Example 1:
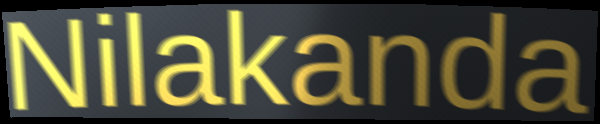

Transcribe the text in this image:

Nilakanda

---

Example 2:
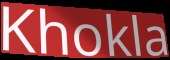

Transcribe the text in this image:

Khokla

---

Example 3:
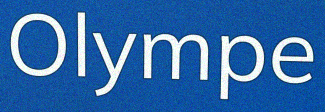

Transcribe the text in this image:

Olympe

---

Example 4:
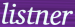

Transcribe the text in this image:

listner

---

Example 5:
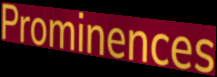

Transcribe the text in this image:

Prominences